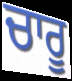
ਚਾਰੂ